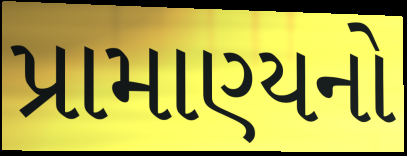
પ્રામાણ્યનો